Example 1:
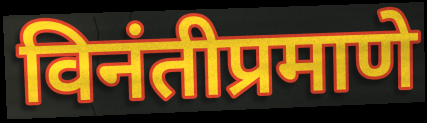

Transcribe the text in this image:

विनंतीप्रमाणे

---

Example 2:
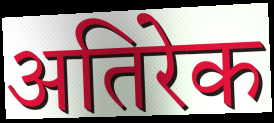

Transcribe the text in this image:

अतिरेक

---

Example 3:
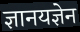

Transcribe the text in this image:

ज्ञानयज्ञेन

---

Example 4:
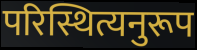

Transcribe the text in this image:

परिस्थित्यनुरूप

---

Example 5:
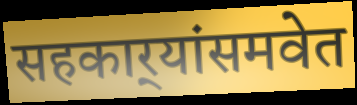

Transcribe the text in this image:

सहकार्यांसमवेत